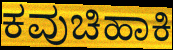
ಕವುಚಿಹಾಕಿ